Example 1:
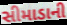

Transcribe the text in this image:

સીમાડાની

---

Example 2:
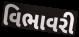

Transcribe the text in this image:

વિભાવરી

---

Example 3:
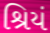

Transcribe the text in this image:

શ્રિયં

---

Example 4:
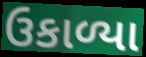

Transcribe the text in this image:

ઉકાળ્યા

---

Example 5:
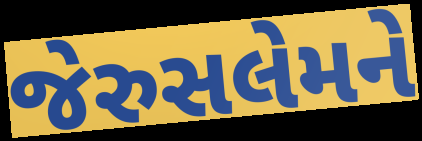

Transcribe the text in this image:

જેરુસલેમને